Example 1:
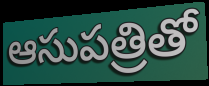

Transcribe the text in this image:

ఆసుపత్రితో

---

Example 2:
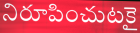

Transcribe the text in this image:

నిరూపించుటకై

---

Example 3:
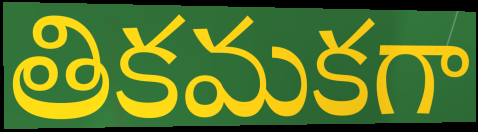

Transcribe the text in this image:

తికమకగా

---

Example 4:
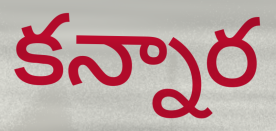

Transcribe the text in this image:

కన్నార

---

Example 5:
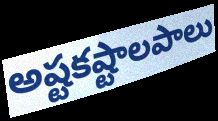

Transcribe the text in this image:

అష్టకష్టాలపాలు